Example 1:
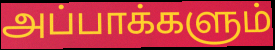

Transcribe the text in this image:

அப்பாக்களும்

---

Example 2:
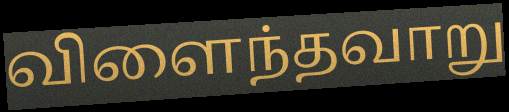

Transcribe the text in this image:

விளைந்தவாறு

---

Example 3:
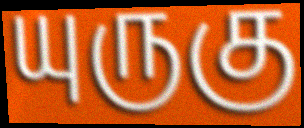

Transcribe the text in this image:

யுருகு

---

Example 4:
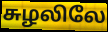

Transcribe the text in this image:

சுழலிலே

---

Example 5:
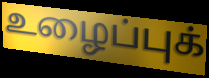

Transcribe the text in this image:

உழைப்புக்